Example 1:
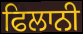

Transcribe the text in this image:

ਫਿਲਾਨੀ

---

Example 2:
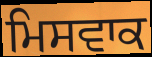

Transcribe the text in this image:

ਮਿਸਵਾਕ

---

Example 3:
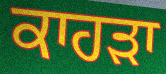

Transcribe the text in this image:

ਕਾਹੜਾ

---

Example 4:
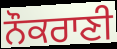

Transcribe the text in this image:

ਨੌਕਰਾਣੀ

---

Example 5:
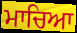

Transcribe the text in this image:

ਮਾਚਿਆ